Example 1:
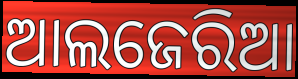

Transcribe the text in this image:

ଆଲଜେରିଆ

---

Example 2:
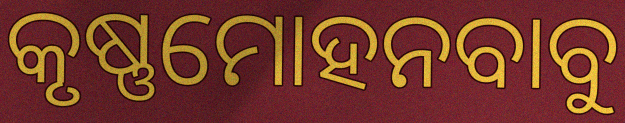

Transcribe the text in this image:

କୃଷ୍ଣମୋହନବାବୁ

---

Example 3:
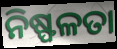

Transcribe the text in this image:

ନିଷ୍ଫଳତା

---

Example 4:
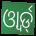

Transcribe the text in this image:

ଓ୍ୱାର୍ଡ୍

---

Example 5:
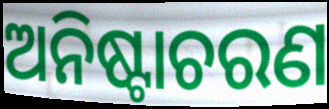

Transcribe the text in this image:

ଅନିଷ୍ଟାଚରଣ